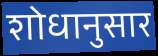
शोधानुसार